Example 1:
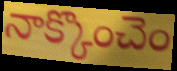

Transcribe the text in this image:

నాక్కొంచెం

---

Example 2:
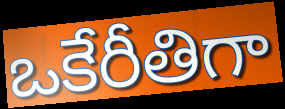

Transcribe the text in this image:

ఒకేరీతిగా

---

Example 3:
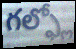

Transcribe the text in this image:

గల్ఫ్లో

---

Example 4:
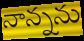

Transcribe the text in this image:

నాన్నను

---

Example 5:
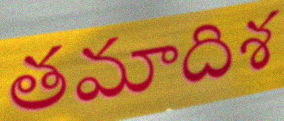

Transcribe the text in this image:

తమాదిశ